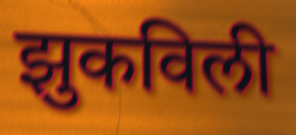
झुकविली